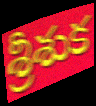
శ్రీశుక